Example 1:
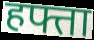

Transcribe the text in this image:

हफ्ता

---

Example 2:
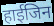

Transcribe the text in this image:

हाईजिन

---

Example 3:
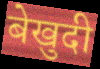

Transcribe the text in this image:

बेखुदी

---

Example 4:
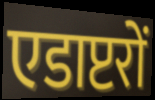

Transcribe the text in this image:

एडाप्टरों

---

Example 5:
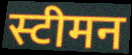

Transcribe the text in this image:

स्टीमन